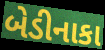
બેડીનાકા